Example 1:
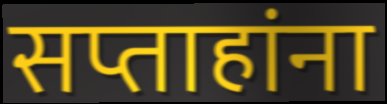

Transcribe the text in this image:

सप्ताहांना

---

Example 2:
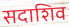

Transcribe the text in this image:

सदाशिव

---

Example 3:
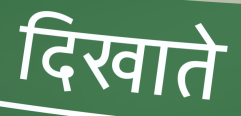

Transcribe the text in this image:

दिखाते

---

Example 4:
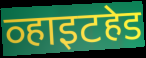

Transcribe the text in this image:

व्हाइटहेड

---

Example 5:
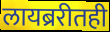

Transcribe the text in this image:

लायब्ररीतही